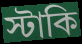
স্টাকি